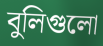
বুলিগুলো